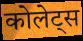
कोलेट्स